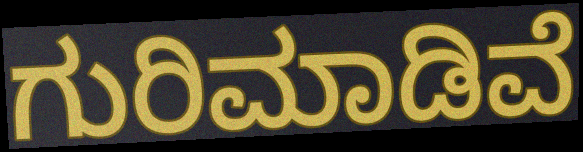
ಗುರಿಮಾಡಿವೆ